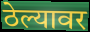
ठेल्यावर